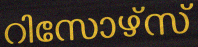
റിസോഴ്സ്